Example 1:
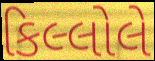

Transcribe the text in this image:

કિલ્લોલે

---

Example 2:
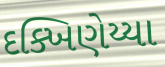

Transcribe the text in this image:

દક્ખિણેય્યા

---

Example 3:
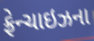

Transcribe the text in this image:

ફ્રેન્ચાઇઝના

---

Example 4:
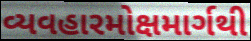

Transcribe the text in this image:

વ્યવહારમોક્ષમાર્ગથી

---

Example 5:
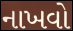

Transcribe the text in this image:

નાખવો